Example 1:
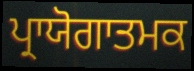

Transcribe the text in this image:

ਪ੍ਰਾਯੋਗਾਤਮਕ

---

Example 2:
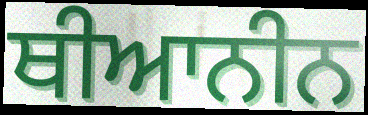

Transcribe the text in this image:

ਥੀਆਨੀਨ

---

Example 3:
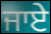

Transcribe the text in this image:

ਜਾਏੇ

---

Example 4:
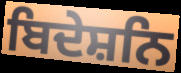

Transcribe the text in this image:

ਬਿਦੇਸ਼ਨਿ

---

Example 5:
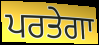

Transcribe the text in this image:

ਪਰਤੇਗਾ